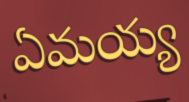
ఏమయ్య